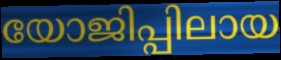
യോജിപ്പിലായ